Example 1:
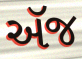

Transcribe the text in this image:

ઍજ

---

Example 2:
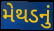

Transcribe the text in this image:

મેથડનું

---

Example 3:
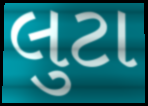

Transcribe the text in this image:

લુટા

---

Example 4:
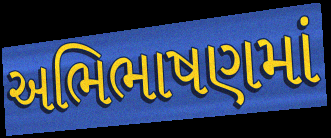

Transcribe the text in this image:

અભિભાષણમાં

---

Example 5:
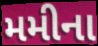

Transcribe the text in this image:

મમીના